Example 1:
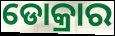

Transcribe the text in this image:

ଡୋକ୍ରାର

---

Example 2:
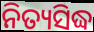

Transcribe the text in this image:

ନିତ୍ୟସିଦ୍ଧ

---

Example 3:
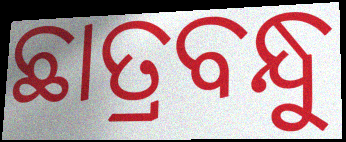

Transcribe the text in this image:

ଛାତ୍ରବନ୍ଧୁ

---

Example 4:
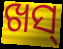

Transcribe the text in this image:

ଖସ୍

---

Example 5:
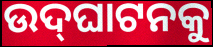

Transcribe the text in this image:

ଉଦ୍‌ଘାଟନକୁ